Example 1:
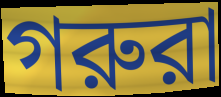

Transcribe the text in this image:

গরুরা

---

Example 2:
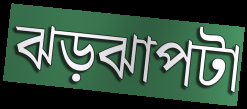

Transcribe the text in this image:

ঝড়ঝাপটা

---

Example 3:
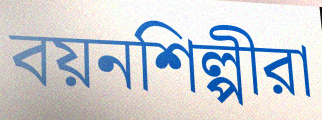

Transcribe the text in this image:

বয়নশিল্পীরা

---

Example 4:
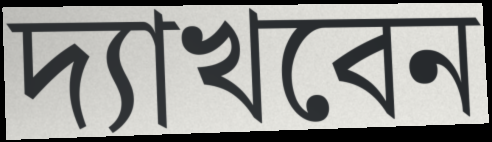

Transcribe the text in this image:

দ্যাখবেন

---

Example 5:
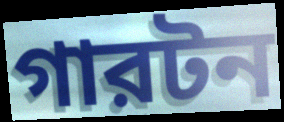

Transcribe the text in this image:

গারটন